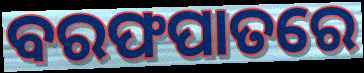
ବରଫପାତରେ